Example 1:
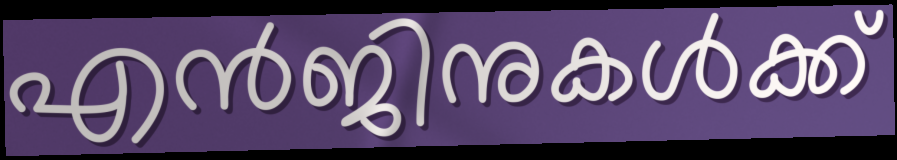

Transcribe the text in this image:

എൻജിനുകൾക്ക്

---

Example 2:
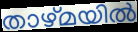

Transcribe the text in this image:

താഴ്മയിൽ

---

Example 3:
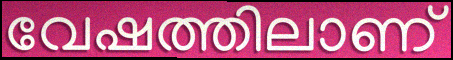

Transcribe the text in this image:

വേഷത്തിലാണ്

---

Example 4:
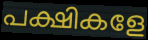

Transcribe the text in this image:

പക്ഷികളേ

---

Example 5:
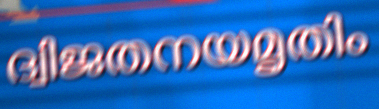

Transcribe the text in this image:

ദ്വിജതനയമൃതിം